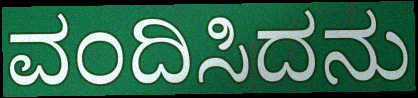
ವಂದಿಸಿದನು